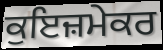
ਕੁਇਜ਼ਮੇਕਰ